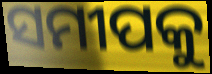
ସମୀପକୁ